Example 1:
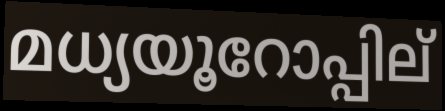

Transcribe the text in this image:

മധ്യയൂറോപ്പില്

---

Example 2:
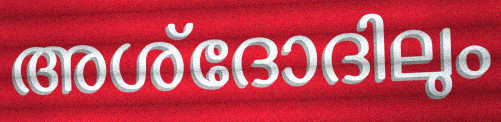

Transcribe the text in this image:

അശ്ദോദിലും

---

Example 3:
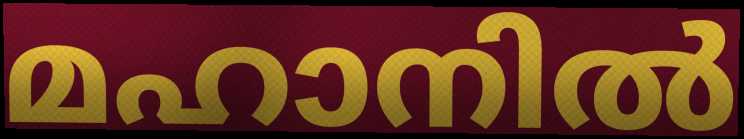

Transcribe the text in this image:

മഹാനിൽ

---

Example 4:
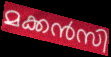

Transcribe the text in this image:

മക്കൻസി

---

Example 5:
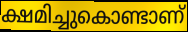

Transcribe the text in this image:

ക്ഷമിച്ചുകൊണ്ടാണ്